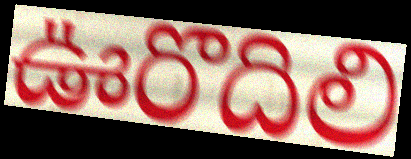
ఊరొదిలి